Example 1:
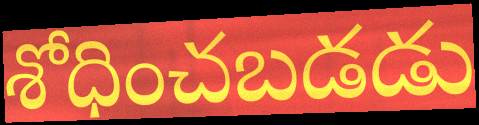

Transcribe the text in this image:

శోధించబడడు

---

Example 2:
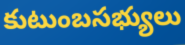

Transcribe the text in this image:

కుటుంబసభ్యులు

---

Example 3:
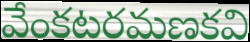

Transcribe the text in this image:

వేంకటరమణకవి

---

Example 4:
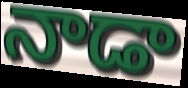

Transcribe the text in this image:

నాడా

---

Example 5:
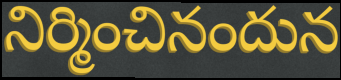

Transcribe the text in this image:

నిర్మించినందున